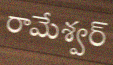
రామేశ్వర్